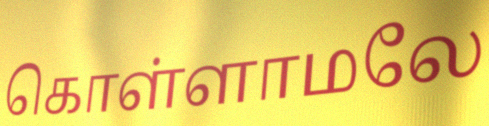
கொள்ளாமலே